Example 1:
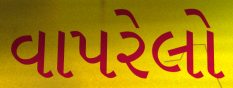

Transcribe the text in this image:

વાપરેલો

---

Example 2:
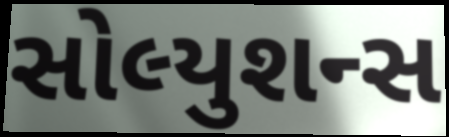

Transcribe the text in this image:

સોલ્યુશન્સ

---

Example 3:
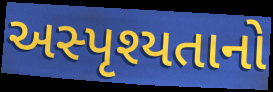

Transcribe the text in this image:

અસ્પૃશ્યતાનો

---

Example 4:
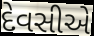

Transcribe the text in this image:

દેવસીએ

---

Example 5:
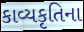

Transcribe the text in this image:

કાવ્યકૃતિના